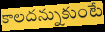
కాలదన్నుకుంటే